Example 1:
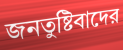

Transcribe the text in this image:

জনতুষ্টিবাদের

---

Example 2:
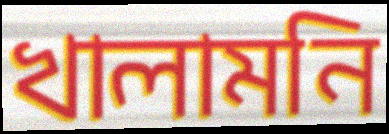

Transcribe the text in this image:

খালামনি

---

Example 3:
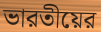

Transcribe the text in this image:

ভারতীয়ের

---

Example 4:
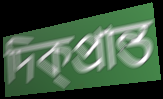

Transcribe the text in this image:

দিক্‌প্রান্ত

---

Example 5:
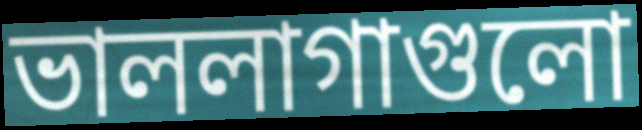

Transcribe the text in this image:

ভাললাগাগুলো